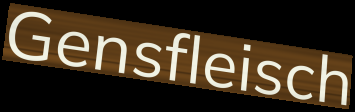
Gensfleisch